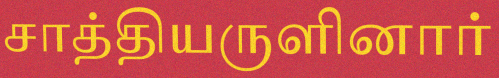
சாத்தியருளினார்